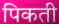
पिकती